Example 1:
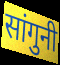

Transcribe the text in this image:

सांगुनी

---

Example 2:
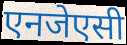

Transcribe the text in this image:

एनजेएसी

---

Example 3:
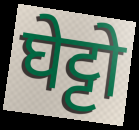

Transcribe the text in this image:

घेट्टो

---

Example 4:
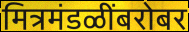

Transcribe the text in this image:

मित्रमंडळींबरोबर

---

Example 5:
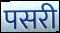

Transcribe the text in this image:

पसरी